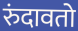
रुंदावतो